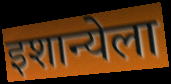
इशान्येला